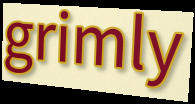
grimly